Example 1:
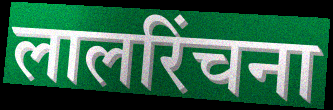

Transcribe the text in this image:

लालरिंचना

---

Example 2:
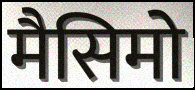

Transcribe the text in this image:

मैसिमो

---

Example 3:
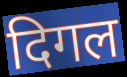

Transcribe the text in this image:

दिगल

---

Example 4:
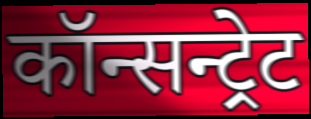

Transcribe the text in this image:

कॉन्सन्ट्रेट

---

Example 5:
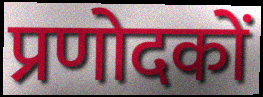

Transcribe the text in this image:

प्रणोदकों